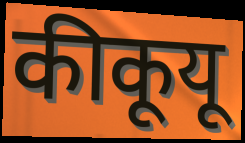
कीकूयू